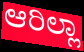
ಆರಿಲ್ಲಾ